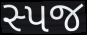
સ્પજ